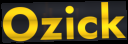
Ozick